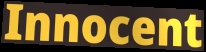
Innocent